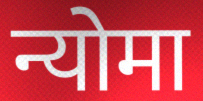
न्योमा